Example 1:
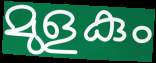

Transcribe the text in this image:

മുളകും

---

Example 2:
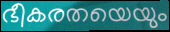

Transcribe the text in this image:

ഭീകരതയെയും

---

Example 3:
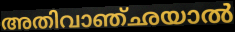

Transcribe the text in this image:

അതിവാഞ്ഛയാൽ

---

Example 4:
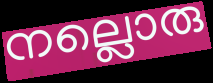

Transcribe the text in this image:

നല്ലൊരു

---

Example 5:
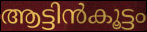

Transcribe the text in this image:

ആട്ടിൻകൂട്ടം